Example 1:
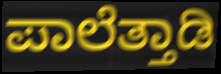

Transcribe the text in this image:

ಪಾಲೆತ್ತಾಡಿ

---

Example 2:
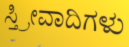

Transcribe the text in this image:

ಸ್ತ್ರೀವಾದಿಗಳು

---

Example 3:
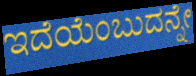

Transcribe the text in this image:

ಇದೆಯೆಂಬುದನ್ನೇ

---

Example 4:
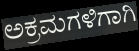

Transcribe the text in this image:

ಅಕ್ರಮಗಳಿಗಾಗಿ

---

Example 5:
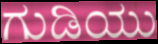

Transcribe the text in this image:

ಗುಡಿಯು